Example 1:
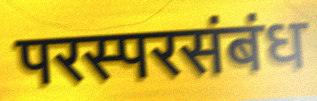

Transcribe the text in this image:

परस्परसंबंध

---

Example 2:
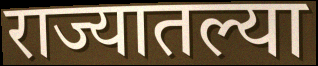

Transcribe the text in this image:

राज्यातल्या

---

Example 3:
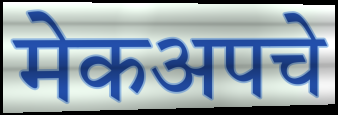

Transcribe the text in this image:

मेकअपचे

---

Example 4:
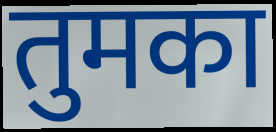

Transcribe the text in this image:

तुमका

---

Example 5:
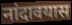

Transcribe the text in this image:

नांदावयास